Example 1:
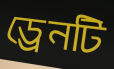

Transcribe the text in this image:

ড্রেনটি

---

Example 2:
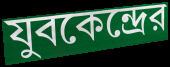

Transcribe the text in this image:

যুবকেন্দ্রের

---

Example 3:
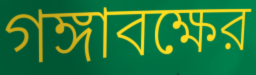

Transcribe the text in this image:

গঙ্গাবক্ষের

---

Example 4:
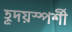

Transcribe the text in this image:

হূদয়স্পর্শী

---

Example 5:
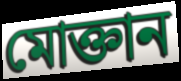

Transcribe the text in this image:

মোক্তান